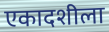
एकादशीला